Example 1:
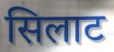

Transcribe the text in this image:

सिलाट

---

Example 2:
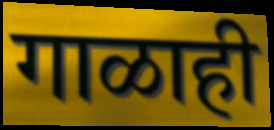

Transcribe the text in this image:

गाळाही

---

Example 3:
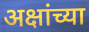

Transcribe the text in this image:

अक्षांच्या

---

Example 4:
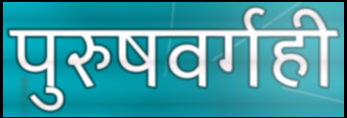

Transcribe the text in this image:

पुरुषवर्गही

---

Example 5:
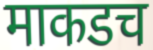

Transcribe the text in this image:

माकडच